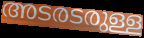
അടരടരുള്ള